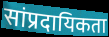
सांप्रदायिकता